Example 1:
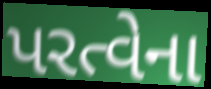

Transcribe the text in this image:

પરત્વેના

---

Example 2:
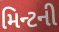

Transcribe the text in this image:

મિન્ટની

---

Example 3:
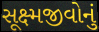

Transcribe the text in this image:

સૂક્ષ્મજીવોનું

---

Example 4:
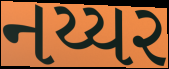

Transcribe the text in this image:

નય્યર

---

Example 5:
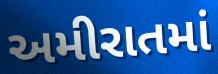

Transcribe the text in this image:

અમીરાતમાં